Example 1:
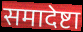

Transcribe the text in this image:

समादेष्टा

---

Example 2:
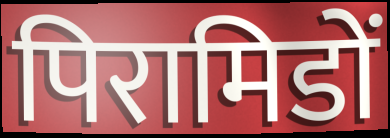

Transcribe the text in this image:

पिरामिडों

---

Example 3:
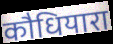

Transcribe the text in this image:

कौधियारा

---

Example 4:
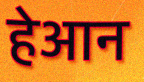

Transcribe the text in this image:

हेआन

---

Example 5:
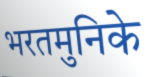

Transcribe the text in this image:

भरतमुनिके